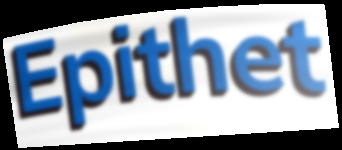
Epithet